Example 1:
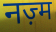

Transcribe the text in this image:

नज़्म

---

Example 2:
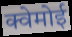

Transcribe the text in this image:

क्वेमोई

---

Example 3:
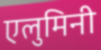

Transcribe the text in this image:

एलुमिनी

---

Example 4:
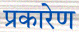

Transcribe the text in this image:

प्रकारेण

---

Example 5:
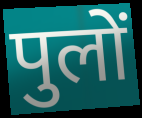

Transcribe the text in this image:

पुलों